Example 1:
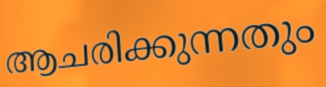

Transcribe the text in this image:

ആചരിക്കുന്നതും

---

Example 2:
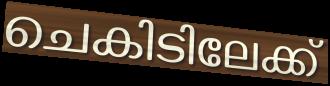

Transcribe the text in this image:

ചെകിടിലേക്ക്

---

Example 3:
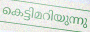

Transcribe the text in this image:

കെട്ടിമറിയുന്നു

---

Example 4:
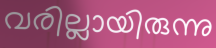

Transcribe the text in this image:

വരില്ലായിരുന്നു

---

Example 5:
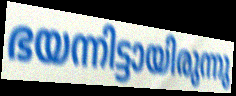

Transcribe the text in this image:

ഭയന്നിട്ടായിരുന്നു